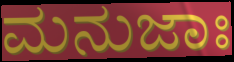
ಮನುಜಾಃ